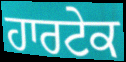
ਹਾਰਟੇਕ